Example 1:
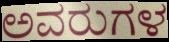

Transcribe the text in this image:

ಅವರುಗಳ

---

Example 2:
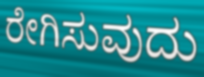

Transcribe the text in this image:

ರೇಗಿಸುವುದು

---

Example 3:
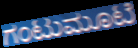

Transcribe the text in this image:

ಗಂಟುಮೂಟೆ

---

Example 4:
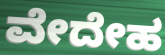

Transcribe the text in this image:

ವೇದೇಹ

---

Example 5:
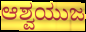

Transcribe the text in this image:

ಆಶ್ವಯುಜ